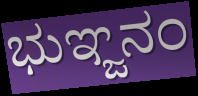
ಭುಞ್ಜನಂ